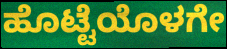
ಹೊಟ್ಟೆಯೊಳಗೇ